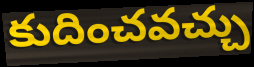
కుదించవచ్చు